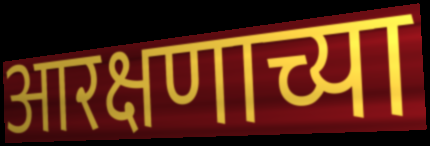
आरक्षणाच्या